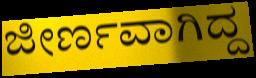
ಜೀರ್ಣವಾಗಿದ್ದ